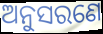
ଅନୁସରଣେ